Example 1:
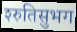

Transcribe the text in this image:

श्रुतिसुभग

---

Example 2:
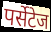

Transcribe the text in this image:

पर्सेटेज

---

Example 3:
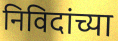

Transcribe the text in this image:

निविदांच्या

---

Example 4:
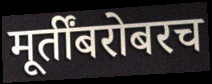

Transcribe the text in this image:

मूर्तींबरोबरच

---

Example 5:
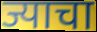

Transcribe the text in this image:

ज्याचा